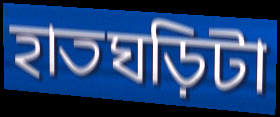
হাতঘড়িটা